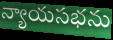
న్యాయసభను